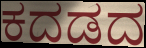
ಕದಡದ